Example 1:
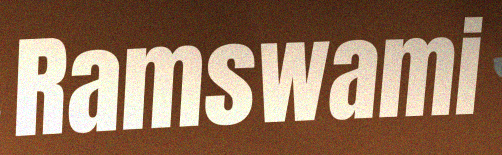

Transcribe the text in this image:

Ramswami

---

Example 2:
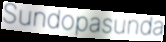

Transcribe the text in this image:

Sundopasunda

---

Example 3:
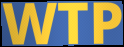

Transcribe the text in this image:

WTP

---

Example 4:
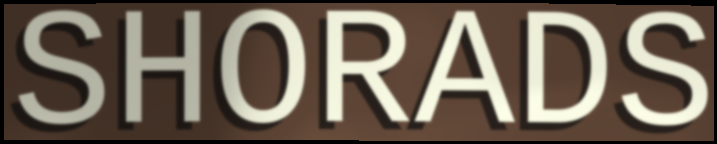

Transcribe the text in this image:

SHORADS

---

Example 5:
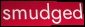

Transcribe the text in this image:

smudged